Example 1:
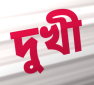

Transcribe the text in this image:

দুখী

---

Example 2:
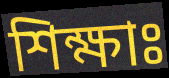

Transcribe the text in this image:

শিক্ষাঃ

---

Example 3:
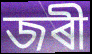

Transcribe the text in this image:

জৰী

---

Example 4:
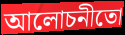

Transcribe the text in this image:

আলোচনীতো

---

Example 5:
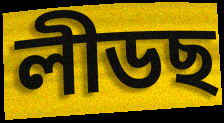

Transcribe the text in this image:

লীডছ